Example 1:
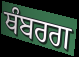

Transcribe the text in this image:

ਥੰਬਰਗ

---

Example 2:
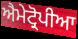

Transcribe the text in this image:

ਐਮੇਟ੍ਰੋਪੀਆ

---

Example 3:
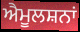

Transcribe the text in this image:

ਐਮੂਲਸ਼ਨਾਂ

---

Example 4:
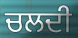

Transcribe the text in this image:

ਚਲਦੀ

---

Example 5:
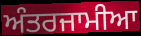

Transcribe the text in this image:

ਅੰਤਰਜਾਮੀਆ